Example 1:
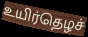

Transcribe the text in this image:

உயிர்தெழச்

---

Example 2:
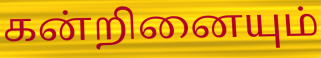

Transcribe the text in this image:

கன்றினையும்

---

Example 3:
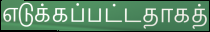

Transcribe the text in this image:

எடுக்கப்பட்டதாகத்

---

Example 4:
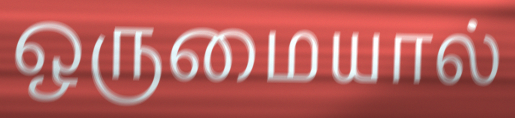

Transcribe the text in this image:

ஒருமையால்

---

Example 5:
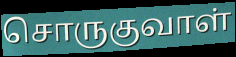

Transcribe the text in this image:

சொருகுவாள்